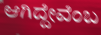
ಆಗಿದ್ದೇವೆಂಬ